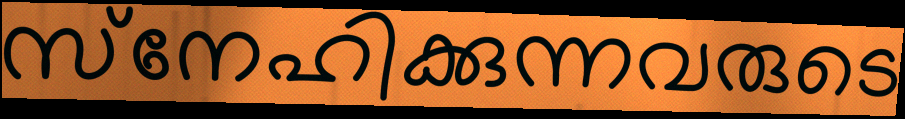
സ്‌നേഹിക്കുന്നവരുടെ